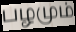
பழமும்